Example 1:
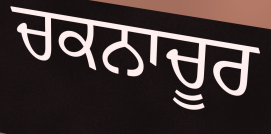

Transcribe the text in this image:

ਚਕਨਾਚੂਰ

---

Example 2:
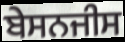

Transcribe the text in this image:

ਬੇਸਨਜੀਸ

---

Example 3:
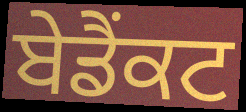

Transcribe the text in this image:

ਬੇਡੈਂਕਟ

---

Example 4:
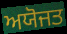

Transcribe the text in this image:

ਅਯੋਜਤ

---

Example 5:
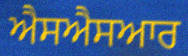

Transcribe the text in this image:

ਐਸਐਸਆਰ